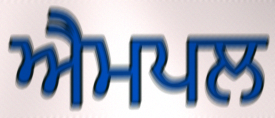
ਐਮਪਲ